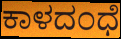
ಕಾಳದಂಧೆ